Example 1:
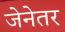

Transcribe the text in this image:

जेनेतर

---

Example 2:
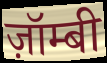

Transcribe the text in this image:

ज़ॉम्बी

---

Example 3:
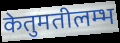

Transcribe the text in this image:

केतुमतीलम्भ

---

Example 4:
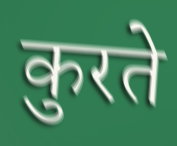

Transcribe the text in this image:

कुरते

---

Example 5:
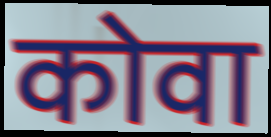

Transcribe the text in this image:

कोवा